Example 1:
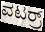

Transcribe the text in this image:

ವಟರ್ರ್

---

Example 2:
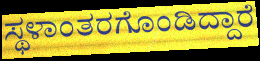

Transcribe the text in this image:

ಸ್ಥಳಾಂತರಗೊಂಡಿದ್ದಾರೆ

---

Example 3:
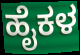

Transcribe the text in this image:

ಹೈಕಳ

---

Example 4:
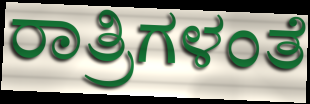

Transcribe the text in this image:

ರಾತ್ರಿಗಳಂತೆ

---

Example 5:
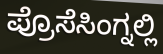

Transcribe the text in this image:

ಪ್ರೊಸೆಸಿಂಗ್ನಲ್ಲಿ